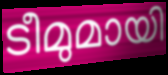
ടീമുമായി